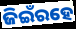
ଜିଇଁରହେ